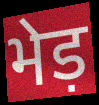
भेड़